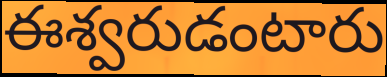
ఈశ్వరుడంటారు